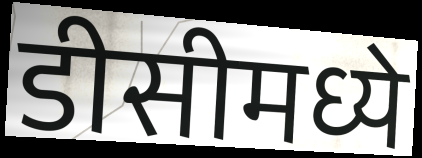
डीसीमध्ये